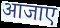
आजाए